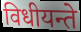
विधीयन्ते